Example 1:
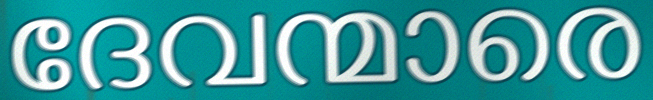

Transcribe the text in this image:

ദേവന്മാരെ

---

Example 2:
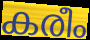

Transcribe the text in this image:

കരീം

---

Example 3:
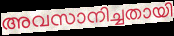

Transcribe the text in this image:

അവസാനിച്ചതായി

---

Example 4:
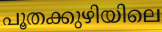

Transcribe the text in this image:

പൂതക്കുഴിയിലെ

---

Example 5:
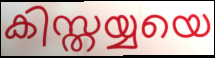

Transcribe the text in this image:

കിസ്തയ്യയെ